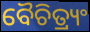
ବୈଚିତ୍ର୍ୟଂ